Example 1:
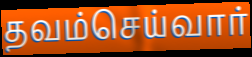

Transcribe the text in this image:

தவம்செய்வார்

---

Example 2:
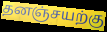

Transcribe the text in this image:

தனஞ்சயற்கு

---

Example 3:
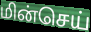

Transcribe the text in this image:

மின்செய்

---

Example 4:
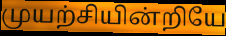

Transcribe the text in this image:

முயற்சியின்றியே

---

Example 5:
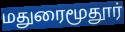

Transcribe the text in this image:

மதுரைமூதூர்